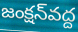
జంక్షన్‌వద్ద